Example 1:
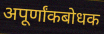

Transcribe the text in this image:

अपूर्णांकबोधक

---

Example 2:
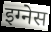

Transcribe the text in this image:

इग्नेस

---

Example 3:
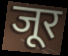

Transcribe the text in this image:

जूर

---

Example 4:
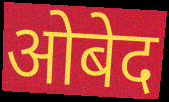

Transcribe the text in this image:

ओबेद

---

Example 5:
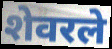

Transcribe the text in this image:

शेवरले